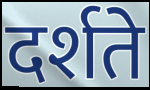
दर्शते